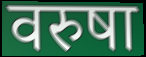
वरुषा